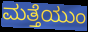
ಮತ್ತೆಯುಂ